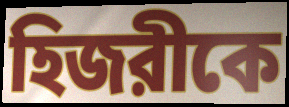
হিজরীকে